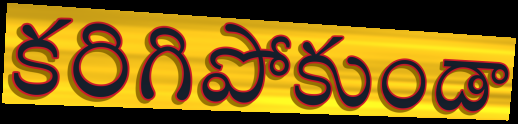
కరిగిపోకుండా